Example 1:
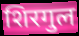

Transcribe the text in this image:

शिरगुल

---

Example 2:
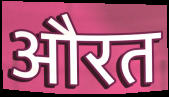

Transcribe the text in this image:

औरत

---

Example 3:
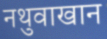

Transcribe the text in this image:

नथुवाखान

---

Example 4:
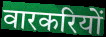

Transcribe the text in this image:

वारकरियों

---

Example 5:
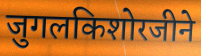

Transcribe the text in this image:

जुगलकिशोरजीने